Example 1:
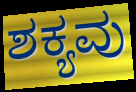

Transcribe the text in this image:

ಶಕ್ಯವು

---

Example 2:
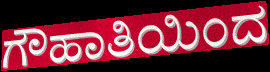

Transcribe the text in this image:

ಗೌಹಾತಿಯಿಂದ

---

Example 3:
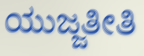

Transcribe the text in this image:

ಯುಜ್ಜತೀತಿ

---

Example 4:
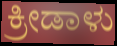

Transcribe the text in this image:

ಕ್ರೀಡಾಳು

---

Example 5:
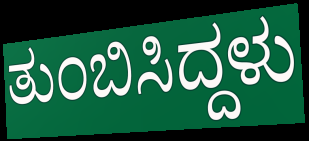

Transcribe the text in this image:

ತುಂಬಿಸಿದ್ದಳು